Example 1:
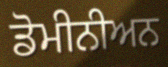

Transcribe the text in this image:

ਡੋਮੀਨੀਅਨ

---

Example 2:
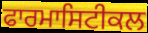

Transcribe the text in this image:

ਫਾਰਮਾਸਿਟੀਕਲ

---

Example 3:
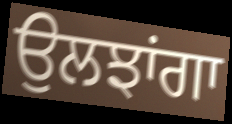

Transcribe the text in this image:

ਉਲਝਾਂਗਾ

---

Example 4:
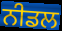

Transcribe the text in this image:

ਨੀਡਲ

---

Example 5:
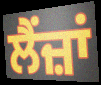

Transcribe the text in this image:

ਲੈਂਜ਼ਾਂ